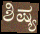
ಶಿಷ್ಯ